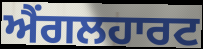
ਐਂਗਲਹਾਰਟ